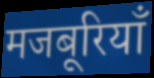
मजबूरियाँ